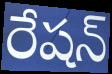
రేషన్